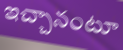
ఇచ్చానంటూ